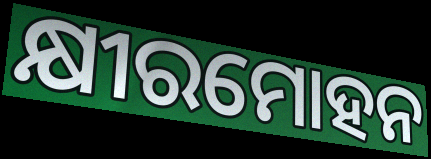
କ୍ଷୀରମୋହନ